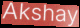
Akshay